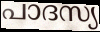
പാദസ്യ